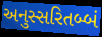
અનુસ્સરિતબ્બં